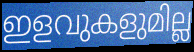
ഇളവുകളുമില്ല